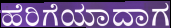
ಹೆರಿಗೆಯಾದಾಗ